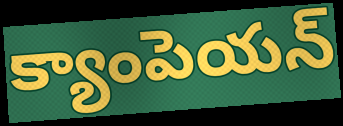
క్యాంపెయన్